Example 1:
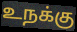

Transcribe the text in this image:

உநக்கு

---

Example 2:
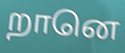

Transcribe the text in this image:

றானெ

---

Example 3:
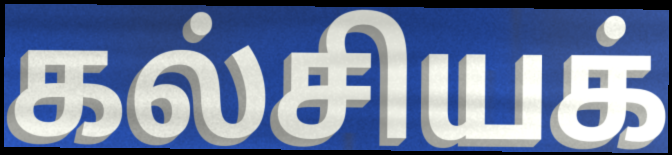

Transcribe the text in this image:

கல்சியக்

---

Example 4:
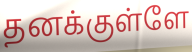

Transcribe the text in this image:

தனக்குள்ளே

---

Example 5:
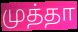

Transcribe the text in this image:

முத்தா